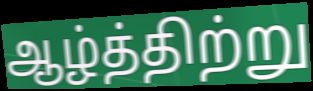
ஆழ்த்திற்று